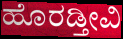
ಹೊರಡ್ತೀವಿ